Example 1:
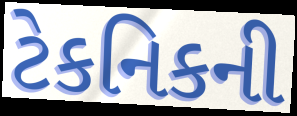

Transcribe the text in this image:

ટેકનિકની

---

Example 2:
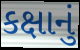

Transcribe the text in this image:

કક્ષાનું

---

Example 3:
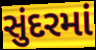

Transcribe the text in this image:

સુંદરમાં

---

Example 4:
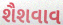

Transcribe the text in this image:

શૈશવાવ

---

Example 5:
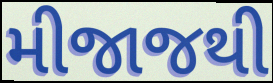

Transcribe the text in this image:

મીજાજથી